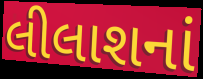
લીલાશનાં